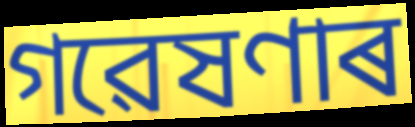
গৱেষণাৰ